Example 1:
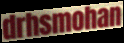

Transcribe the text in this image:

drhsmohan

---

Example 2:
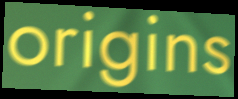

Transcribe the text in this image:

origins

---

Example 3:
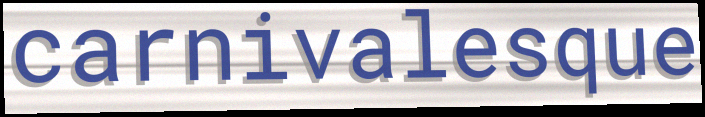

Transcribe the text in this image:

carnivalesque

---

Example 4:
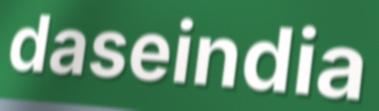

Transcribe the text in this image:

daseindia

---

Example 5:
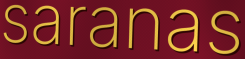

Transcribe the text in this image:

saranas